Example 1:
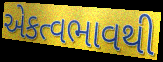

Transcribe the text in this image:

એકત્વભાવથી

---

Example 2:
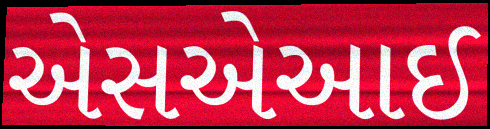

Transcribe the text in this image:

એસએઆઈ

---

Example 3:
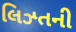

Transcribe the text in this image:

લિઝ્તની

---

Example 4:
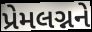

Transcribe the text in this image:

પ્રેમલગ્નને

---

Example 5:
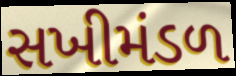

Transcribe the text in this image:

સખીમંડળ